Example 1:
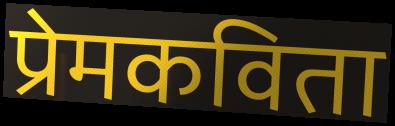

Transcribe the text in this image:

प्रेमकविता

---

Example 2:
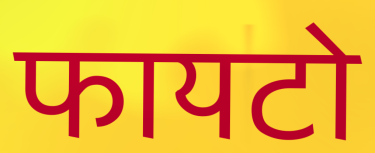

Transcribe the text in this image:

फायटो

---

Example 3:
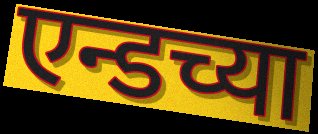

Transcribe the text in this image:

एन्डच्या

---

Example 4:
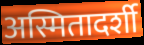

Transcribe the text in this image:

अस्मितादर्शी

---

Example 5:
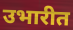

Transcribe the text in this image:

उभारीत